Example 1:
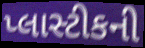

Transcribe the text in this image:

પ્લાસ્ટીકની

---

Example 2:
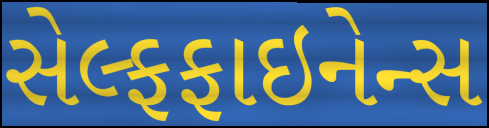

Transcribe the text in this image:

સેલ્ફફાઇનેન્સ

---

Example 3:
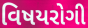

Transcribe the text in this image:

વિષયરોગી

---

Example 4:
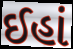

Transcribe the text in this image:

ઈહાં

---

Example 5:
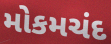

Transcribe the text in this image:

મોકમચંદ